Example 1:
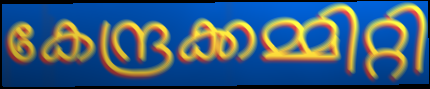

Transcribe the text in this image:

കേന്ദ്രക്കമ്മിറ്റി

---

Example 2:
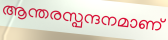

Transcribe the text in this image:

ആന്തരസ്പന്ദനമാണ്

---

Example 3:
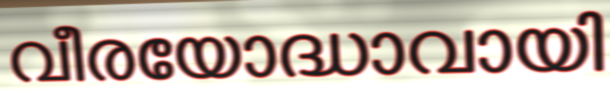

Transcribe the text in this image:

വീരയോദ്ധാവായി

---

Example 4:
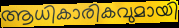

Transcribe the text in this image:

ആധികാരികവുമായി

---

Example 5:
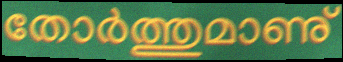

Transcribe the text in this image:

തോർത്തുമാണു്